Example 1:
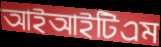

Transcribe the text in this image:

আইআইটিএম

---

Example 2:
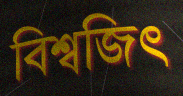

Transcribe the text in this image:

বিশ্বজিৎ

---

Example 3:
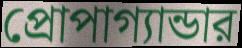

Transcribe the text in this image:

প্রোপাগ্যান্ডার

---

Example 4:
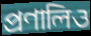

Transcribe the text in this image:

প্রণালিও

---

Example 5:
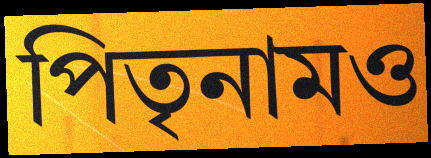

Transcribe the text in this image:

পিতৃনামও